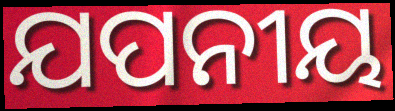
ଯପନୀୟ